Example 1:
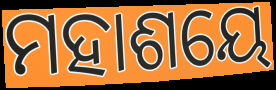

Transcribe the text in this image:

ମହାଶୟେ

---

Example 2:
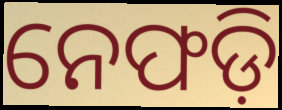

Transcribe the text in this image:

ନେଫଡ଼ି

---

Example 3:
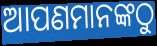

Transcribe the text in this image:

ଆପଣମାନଙ୍କଠୁ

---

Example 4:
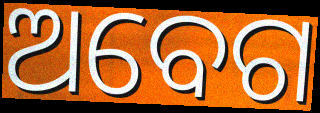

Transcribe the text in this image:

ଅବେଗ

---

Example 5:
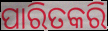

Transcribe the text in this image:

ପାରିତକରି